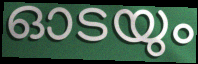
ഓടയും